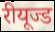
रीयूज्ड